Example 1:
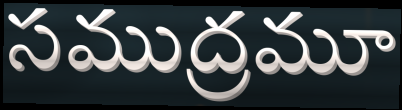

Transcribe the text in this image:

సముద్రమూ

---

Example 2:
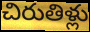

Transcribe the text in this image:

చిరుతిళ్లు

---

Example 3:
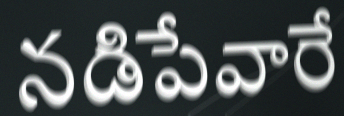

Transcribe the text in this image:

నడిపేవారే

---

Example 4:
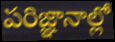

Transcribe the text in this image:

పరిజ్ఞానాల్లో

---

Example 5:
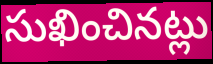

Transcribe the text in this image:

సుఖించినట్లు